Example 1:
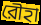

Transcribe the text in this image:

রৌহা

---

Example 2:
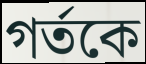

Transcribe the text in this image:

গর্তকে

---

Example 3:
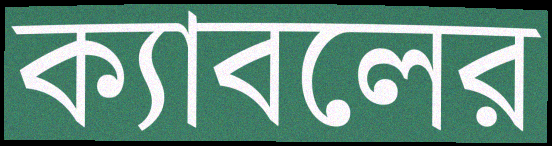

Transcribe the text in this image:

ক্যাবলের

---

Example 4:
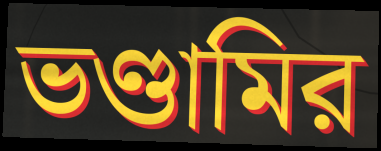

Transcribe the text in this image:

ভণ্ডামির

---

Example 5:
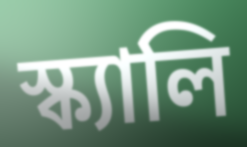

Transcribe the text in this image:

স্ক্যালি